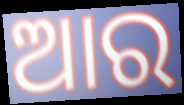
ଆର